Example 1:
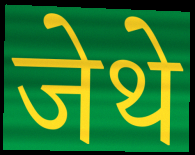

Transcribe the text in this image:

जेथे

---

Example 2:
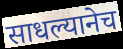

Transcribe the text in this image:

साधल्यानेच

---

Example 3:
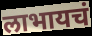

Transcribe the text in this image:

लाभायचं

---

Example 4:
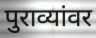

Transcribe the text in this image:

पुराव्यांवर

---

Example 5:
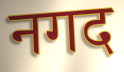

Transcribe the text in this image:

नगद